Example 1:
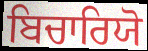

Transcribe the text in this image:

ਬਿਚਾਰਿਯੋ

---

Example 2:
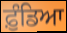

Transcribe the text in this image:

ਫ਼ੁੰਡਿਆ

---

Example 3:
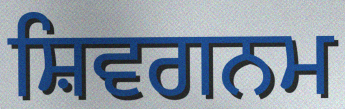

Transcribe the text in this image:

ਸ਼ਿਵਗਨਮ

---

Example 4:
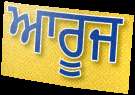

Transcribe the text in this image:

ਆਰੂਜ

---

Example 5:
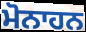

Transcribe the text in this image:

ਮੋਨਾਹਨ